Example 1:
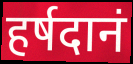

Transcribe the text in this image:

हर्षदानं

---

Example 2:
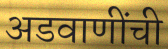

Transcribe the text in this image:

अडवाणींची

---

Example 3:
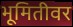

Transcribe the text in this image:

भूमितीवर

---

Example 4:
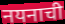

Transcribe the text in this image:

नयनाची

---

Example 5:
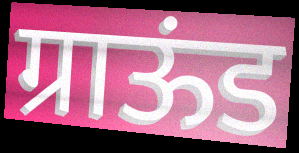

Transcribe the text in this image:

ग्राऊंड